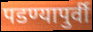
पडण्यापुर्वी